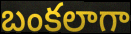
బంకలాగా